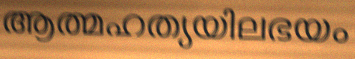
ആത്മഹത്യയിലഭയം